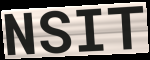
NSIT